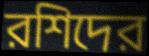
রশিদের